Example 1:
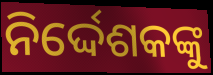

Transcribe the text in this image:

ନିର୍ଦ୍ଦେଶକଙ୍କୁ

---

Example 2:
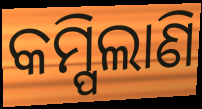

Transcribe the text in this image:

କମ୍ପିଲାଣି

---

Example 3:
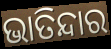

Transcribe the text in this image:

ଭାତିନ୍ଦାର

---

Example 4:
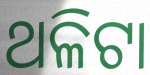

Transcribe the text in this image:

ଥଳିଟା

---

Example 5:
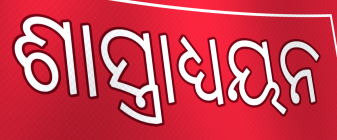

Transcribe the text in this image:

ଶାସ୍ତ୍ରାଧ୍ୟୟନ